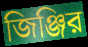
জিঞ্জির